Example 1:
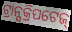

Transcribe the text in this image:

ଟ୍ରାନ୍ସକ୍ରିପଟେଜ୍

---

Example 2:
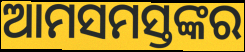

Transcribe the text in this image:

ଆମସମସ୍ତଙ୍କର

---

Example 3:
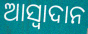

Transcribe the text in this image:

ଆସ୍ୱାଦାନ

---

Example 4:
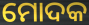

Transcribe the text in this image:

ମୋଦକ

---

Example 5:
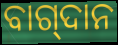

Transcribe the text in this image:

ବାଗ୍‍ଦାନ